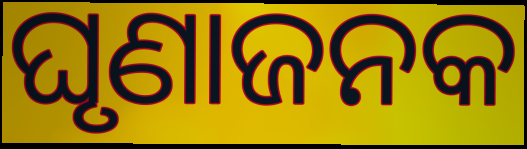
ଘୃଣାଜନକ